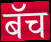
बॅच